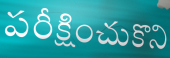
పరీక్షించుకొని